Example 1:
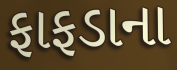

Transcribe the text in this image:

ફાફડાના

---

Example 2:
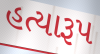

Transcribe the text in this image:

હત્યારૂપ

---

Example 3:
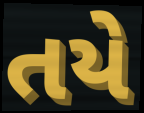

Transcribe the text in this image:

તયે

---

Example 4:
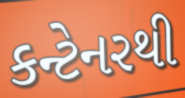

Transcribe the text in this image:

કન્ટેનરથી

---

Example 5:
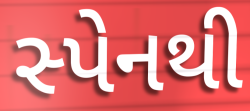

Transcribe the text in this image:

સ્પેનથી